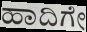
ಹಾದಿಗೇ